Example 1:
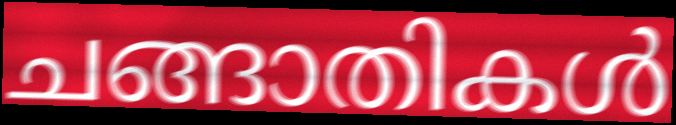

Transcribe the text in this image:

ചങ്ങാതികൾ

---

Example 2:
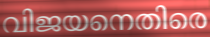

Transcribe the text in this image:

വിജയനെതിരെ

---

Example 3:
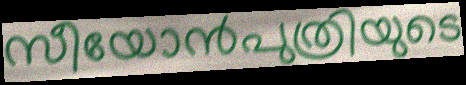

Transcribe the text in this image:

സീയോൻപുത്രിയുടെ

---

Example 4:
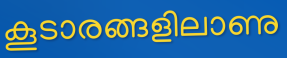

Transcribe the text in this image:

കൂടാരങ്ങളിലാണു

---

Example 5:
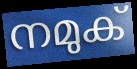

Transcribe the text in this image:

നമുക്